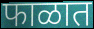
फाळात